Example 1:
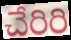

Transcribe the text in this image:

చేరిరి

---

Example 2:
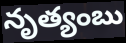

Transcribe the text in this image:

నృత్యంబు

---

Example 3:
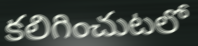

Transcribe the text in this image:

కలిగించుటలో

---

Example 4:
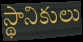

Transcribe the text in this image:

స్థానికులు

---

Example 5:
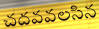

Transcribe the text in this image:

చదవవలసిన